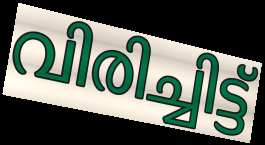
വിരിച്ചിട്ട്